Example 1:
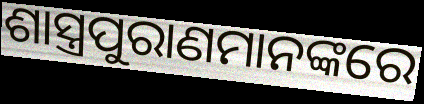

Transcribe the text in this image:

ଶାସ୍ତ୍ରପୁରାଣମାନଙ୍କରେ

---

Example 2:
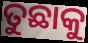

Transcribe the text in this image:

ତୁଛାକୁ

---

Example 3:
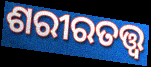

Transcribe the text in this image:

ଶରୀରତତ୍ତ୍ୱ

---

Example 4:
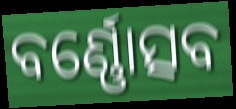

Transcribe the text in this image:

ବର୍ଣ୍ଣୋତ୍ସବ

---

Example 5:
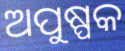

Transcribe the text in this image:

ଅପୁଷ୍ପକ